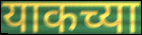
याकच्या